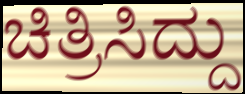
ಚಿತ್ರಿಸಿದ್ದು